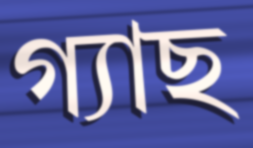
গ্যাছ